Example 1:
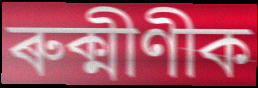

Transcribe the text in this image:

ৰুক্মীণীক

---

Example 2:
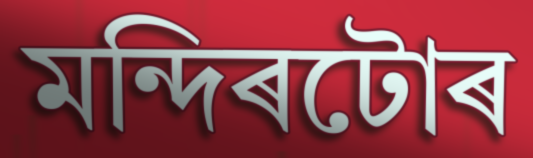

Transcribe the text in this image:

মন্দিৰটোৰ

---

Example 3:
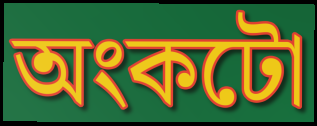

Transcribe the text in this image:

অংকটো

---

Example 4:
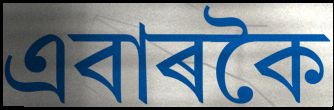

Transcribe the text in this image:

এবাৰকৈ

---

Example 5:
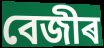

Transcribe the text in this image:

বেজীৰ